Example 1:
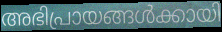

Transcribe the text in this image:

അഭിപ്രായങ്ങൾക്കായി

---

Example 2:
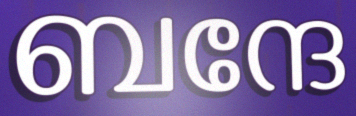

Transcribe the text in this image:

ബന്ദേ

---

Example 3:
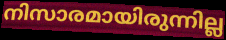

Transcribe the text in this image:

നിസാരമായിരുന്നില്ല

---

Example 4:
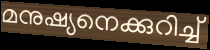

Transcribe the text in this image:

മനുഷ്യനെക്കുറിച്ച്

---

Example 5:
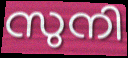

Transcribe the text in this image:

സുനി